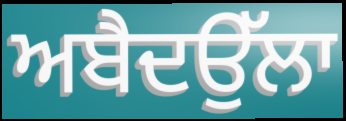
ਅਬੈਦਉੱਲਾ